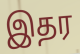
இதர